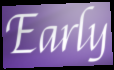
Early